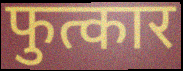
फुत्कार